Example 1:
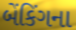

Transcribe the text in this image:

બેંકિંગના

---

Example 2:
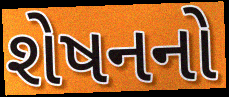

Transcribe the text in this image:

શેષનનો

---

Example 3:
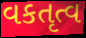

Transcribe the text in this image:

વકતૃત્વ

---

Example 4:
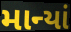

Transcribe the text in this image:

માન્યાં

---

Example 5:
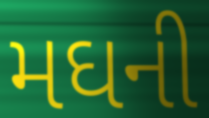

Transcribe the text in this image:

મઘની